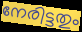
നേരിട്ടതും